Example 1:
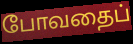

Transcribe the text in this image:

போவதைப்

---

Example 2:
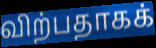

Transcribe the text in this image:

விற்பதாகக்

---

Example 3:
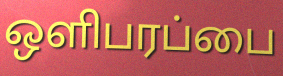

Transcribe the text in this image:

ஒளிபரப்பை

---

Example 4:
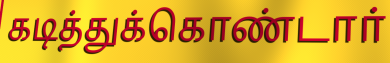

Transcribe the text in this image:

கடித்துக்கொண்டார்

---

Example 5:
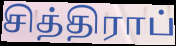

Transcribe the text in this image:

சித்திராப்